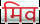
मिव